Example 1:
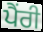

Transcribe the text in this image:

ਪੈਂਰੀ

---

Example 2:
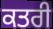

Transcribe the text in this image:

ਕਤਰੀ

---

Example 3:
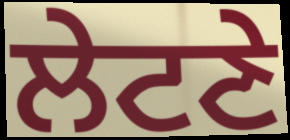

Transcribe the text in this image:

ਲੇਟਣੇ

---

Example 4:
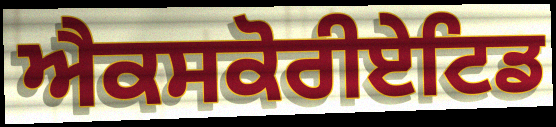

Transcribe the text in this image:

ਐਕਸਕੋਰੀਏਟਿਡ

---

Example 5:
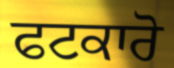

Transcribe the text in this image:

ਫਟਕਾਰੋ